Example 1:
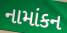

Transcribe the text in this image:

નામાંકન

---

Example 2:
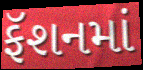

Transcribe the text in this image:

ફૅશનમાં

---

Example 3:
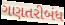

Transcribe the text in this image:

ગણતરીબંધ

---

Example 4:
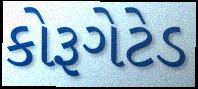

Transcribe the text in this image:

કોરૂગેટેડ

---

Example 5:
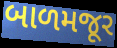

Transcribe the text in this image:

બાળમજૂર